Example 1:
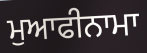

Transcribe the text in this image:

ਮੁਆਫੀਨਾਮਾ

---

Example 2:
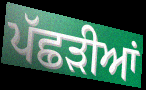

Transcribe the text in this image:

ਪੱਛੜੀਆਂ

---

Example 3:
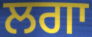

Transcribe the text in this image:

ਲਗਾ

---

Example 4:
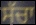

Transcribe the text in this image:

ਸੱਚਾ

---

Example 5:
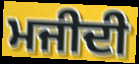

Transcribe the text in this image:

ਮਜੀਦੀ